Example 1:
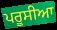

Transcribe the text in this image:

ਪਰੂਸੀਆ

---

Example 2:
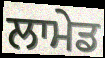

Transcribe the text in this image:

ਲਾਮੇਡ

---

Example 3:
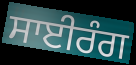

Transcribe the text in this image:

ਸਾਈਰੰਗ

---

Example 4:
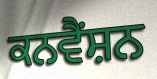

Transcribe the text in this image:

ਕਨਵੈੰਸ਼ਨ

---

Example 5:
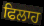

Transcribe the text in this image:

ਫਿਲਾਹ